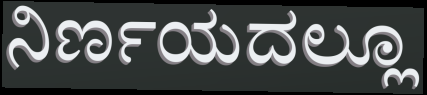
ನಿರ್ಣಯದಲ್ಲೂ